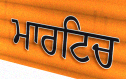
ਮਾਰਟਿਚ